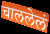
चाललेलं